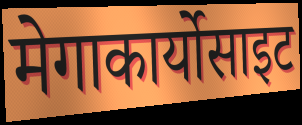
मेगाकार्योसाइट